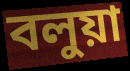
বলুয়া